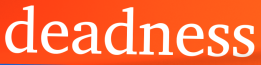
deadness